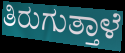
ತಿರುಗುತ್ತಾಳೆ